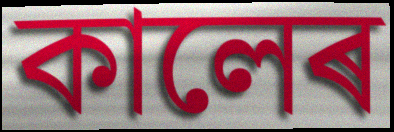
কালেৰ